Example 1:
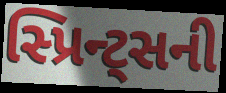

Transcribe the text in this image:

સ્પ્રિન્ટ્સની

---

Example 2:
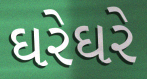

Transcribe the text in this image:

ઘરેઘરે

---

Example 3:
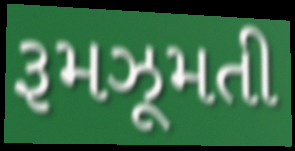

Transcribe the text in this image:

રૂમઝૂમતી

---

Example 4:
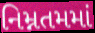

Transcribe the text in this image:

નિમ્નતમમાં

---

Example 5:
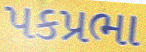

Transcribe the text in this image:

પકપ્રભા